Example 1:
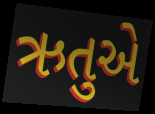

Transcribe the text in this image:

ઋતુએ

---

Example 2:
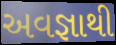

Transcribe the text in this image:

અવજ્ઞાથી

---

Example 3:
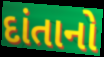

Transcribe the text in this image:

દાંતાનો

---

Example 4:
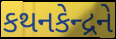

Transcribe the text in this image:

કથનકેન્દ્રને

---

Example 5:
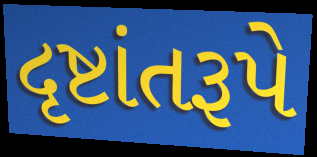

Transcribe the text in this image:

દૃષ્ટાંતરૂપે